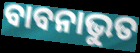
ବାବନାଭୁତ